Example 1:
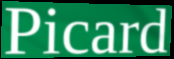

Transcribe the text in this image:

Picard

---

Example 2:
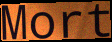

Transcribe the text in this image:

Mort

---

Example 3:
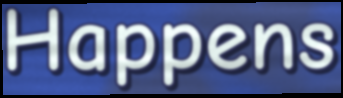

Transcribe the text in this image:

Happens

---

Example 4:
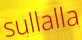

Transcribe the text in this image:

sullalla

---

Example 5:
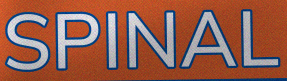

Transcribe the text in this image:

SPINAL